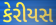
કેરીયસ